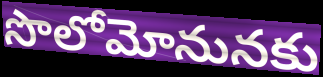
సొలోమోనునకు